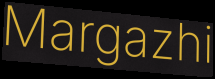
Margazhi